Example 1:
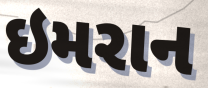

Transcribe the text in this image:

ઇમરાન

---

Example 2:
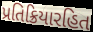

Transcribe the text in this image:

પ્રતિક્રિયારહિત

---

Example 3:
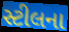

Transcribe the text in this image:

સ્ટીલના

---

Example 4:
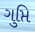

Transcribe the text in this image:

ગુપ્તિ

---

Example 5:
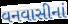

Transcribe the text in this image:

વનવાસીનાં